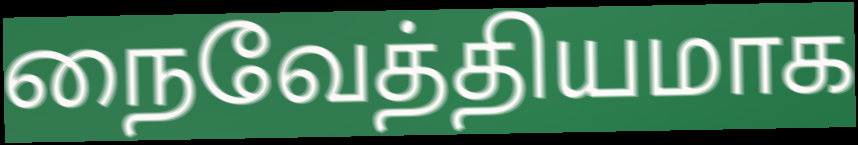
நைவேத்தியமாக